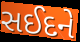
સઈદને